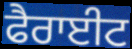
ਫੈਰਾਈਟ